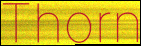
Thorn